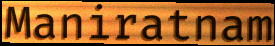
Maniratnam